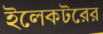
ইলেকটরের